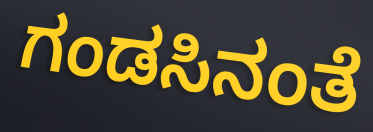
ಗಂಡಸಿನಂತೆ